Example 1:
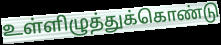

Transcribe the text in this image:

உள்ளிழுத்துக்கொண்டு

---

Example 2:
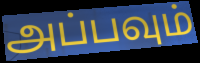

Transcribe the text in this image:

அப்பவும்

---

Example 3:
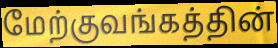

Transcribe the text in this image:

மேற்குவங்கத்தின்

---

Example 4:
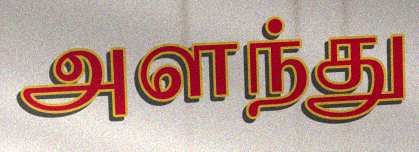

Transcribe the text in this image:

அளந்து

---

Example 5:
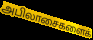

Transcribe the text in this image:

அபிலாசைகளைக்